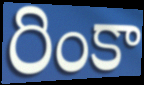
రింకా